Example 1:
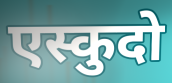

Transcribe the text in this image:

एस्कुदो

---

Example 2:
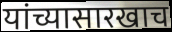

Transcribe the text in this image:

यांच्यासारखाच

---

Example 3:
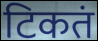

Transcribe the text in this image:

टिकतं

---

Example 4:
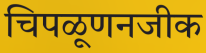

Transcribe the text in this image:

चिपळूणनजीक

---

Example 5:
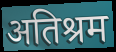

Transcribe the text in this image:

अतिश्रम